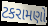
ટકરામણો